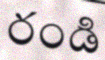
రండి